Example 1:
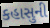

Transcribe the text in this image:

કહાસુની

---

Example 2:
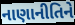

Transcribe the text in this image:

નાણાનીતિને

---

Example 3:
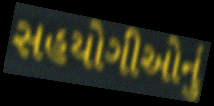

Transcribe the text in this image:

સહયોગીઓનું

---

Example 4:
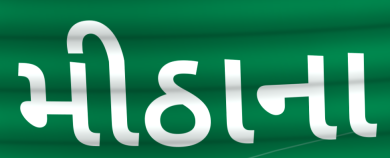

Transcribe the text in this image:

મીઠાના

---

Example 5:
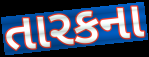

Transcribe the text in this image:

તારકના